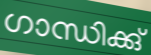
ഗാന്ധിക്കു്